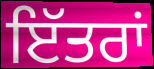
ਇੱਤਰਾਂ